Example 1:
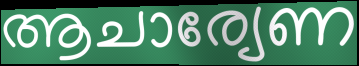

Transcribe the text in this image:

ആചാര്യേണ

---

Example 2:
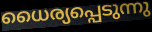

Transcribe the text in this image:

ധൈര്യപ്പെടുന്നു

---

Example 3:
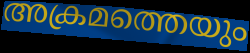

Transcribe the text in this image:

അക്രമത്തെയും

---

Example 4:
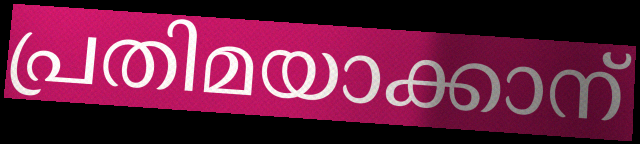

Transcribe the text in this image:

പ്രതിമയാക്കാന്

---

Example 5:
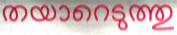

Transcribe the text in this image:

തയാറെടുത്തു